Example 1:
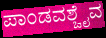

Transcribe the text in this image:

ಪಾಂಡವಶ್ಚೈವ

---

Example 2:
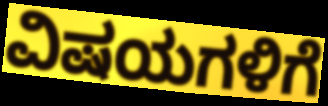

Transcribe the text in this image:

ವಿಷಯಗಳಿಗೆ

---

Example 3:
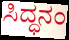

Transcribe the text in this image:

ಸಿದ್ಧನಂ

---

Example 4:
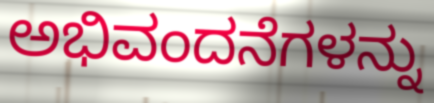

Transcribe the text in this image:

ಅಭಿವಂದನೆಗಳನ್ನು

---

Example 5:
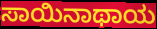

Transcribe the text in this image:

ಸಾಯಿನಾಥಾಯ